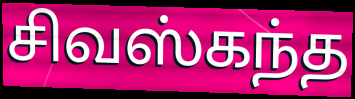
சிவஸ்கந்த